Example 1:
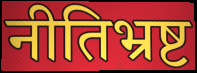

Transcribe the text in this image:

नीतिभ्रष्ट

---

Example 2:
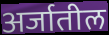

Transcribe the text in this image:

अर्जातील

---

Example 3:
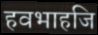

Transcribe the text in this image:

हवभाहजि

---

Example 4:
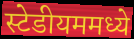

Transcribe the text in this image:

स्टेडीयममध्ये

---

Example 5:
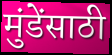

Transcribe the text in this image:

मुंडेंसाठी